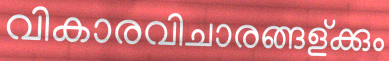
വികാരവിചാരങ്ങള്ക്കും